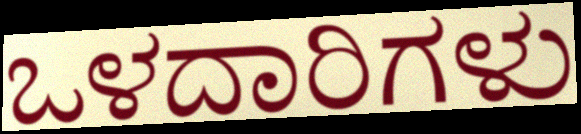
ಒಳದಾರಿಗಳು